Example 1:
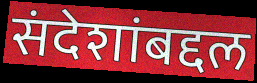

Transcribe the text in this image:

संदेशांबद्दल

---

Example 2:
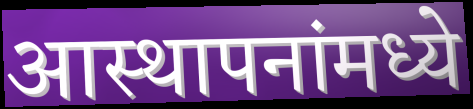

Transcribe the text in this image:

आस्थापनांमध्ये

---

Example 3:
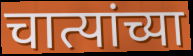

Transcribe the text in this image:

चात्यांच्या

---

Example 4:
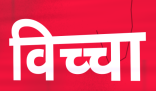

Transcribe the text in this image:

विच्चा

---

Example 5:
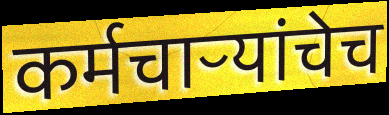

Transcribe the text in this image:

कर्मचाऱ्यांचेच